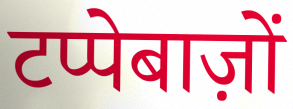
टप्पेबाज़ों